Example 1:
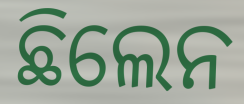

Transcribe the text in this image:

ଛିଲେନ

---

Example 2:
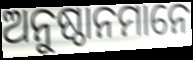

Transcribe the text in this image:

ଅନୁଷ୍ଠାନମାନେ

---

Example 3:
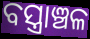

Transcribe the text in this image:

ବସ୍ତ୍ରାଞ୍ଚଳ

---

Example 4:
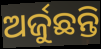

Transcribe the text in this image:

ଅର୍ଜୁଛନ୍ତି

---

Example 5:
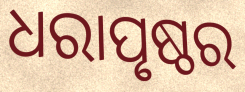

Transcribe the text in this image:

ଧରାପୃଷ୍ଠର